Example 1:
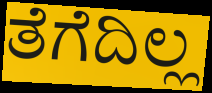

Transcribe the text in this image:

ತೆಗೆದಿಲ್ಲ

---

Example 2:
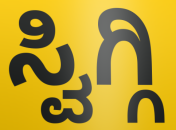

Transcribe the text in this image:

ಸ್ವಿಗ್ಗಿ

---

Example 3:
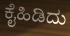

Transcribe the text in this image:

ಕೈಹಿಡಿದು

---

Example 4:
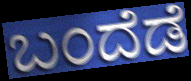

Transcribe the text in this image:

ಬಂದೆಡೆ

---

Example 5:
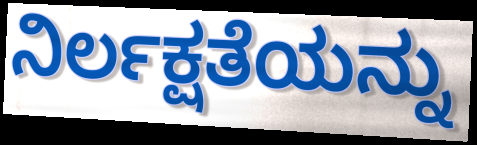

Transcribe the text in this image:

ನಿರ್ಲಕ್ಷತೆಯನ್ನು